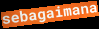
sebagaimana